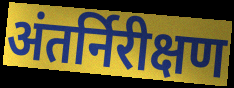
अंतर्निरीक्षण